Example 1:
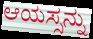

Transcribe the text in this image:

ಆಯಸ್ಸನ್ನು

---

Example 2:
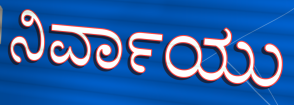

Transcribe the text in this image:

ನಿರ್ವಾಯು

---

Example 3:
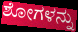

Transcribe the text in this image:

ಶೋಗಳನ್ನು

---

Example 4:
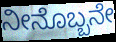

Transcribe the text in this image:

ನೀನೊಬ್ಬನೇ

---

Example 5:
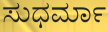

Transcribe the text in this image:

ಸುಧರ್ಮಾ